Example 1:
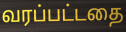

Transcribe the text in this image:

வரப்பட்டதை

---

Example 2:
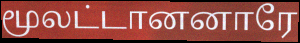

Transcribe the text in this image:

மூலட்டானனாரே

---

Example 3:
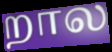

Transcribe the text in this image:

றால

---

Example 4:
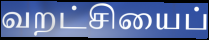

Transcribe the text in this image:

வறட்சியைப்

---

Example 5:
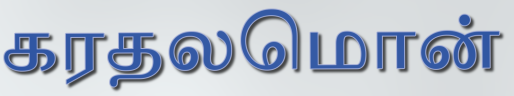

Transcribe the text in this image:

கரதலமொன்